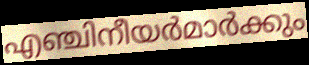
എഞ്ചിനീയർമാർക്കും